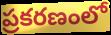
ప్రకరణంలో